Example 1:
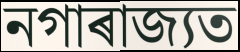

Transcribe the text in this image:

নগাৰাজ্যত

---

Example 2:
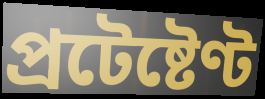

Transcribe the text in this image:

প্ৰটেষ্টেণ্ট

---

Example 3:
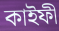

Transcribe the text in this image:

কাইফী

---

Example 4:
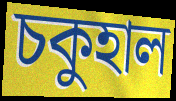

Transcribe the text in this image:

চকুহাল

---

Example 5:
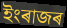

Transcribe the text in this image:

ইংৰাজৰ